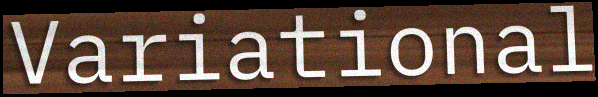
Variational